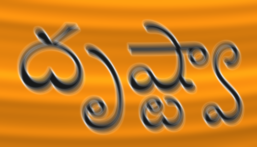
దృష్ట్వా